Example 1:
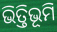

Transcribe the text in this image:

ଭିତ୍ତିଭୂମି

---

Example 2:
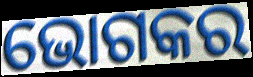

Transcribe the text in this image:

ଭୋଗକର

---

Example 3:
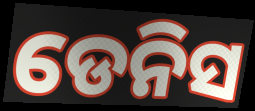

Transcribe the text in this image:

ଡେନିସ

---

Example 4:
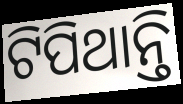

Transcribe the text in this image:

ଟିପିଥାନ୍ତି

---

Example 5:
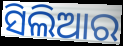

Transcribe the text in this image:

ସିଲିଆର